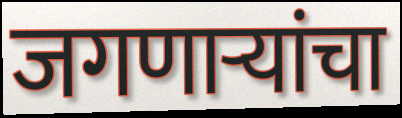
जगणाऱ्यांचा